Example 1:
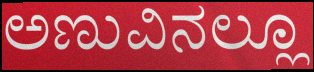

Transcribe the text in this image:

ಅಣುವಿನಲ್ಲೂ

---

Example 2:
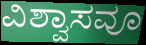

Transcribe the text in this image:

ವಿಶ್ವಾಸವೂ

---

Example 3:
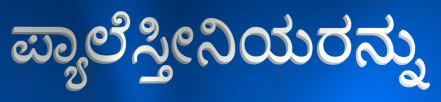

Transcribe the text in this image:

ಪ್ಯಾಲೆಸ್ತೀನಿಯರನ್ನು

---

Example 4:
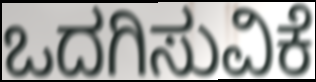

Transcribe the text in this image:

ಒದಗಿಸುವಿಕೆ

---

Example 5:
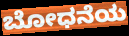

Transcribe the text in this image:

ಬೋಧನೆಯ